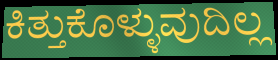
ಕಿತ್ತುಕೊಳ್ಳುವುದಿಲ್ಲ